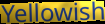
Yellowish